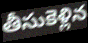
తీసుకెళ్లిన